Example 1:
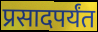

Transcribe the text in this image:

प्रसादपर्यंत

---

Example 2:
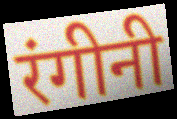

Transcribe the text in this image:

रंगीनी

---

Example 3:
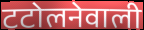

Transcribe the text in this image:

टटोलनेवाली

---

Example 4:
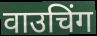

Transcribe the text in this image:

वाउचिंग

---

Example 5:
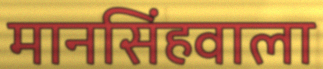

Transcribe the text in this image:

मानसिंहवाला